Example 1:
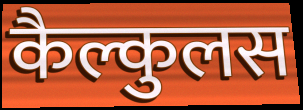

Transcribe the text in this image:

कैल्कुलस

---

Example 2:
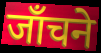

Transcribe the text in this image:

जाँचने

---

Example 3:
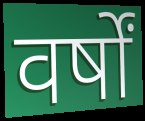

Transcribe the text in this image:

वर्षों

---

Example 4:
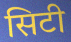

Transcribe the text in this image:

सिटी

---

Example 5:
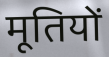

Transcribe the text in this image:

मूतियों